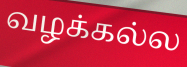
வழக்கல்ல